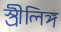
স্ত্ৰীলিঙ্গ